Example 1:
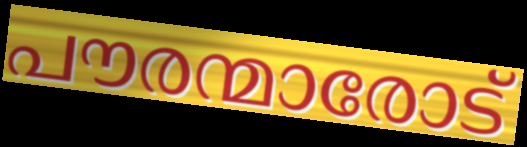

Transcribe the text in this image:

പൗരന്മാരോട്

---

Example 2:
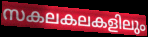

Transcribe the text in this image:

സകലകലകളിലും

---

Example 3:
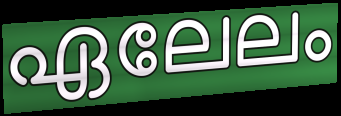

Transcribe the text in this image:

ഏലേലം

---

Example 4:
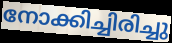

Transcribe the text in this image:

നോക്കിച്ചിരിച്ചു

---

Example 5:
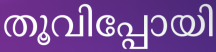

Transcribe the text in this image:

തൂവിപ്പോയി